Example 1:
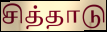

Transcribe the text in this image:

சித்தாடு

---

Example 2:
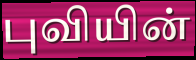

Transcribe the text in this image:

புவியின்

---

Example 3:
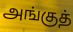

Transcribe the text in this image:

அங்குத்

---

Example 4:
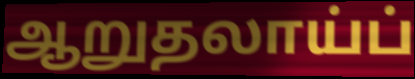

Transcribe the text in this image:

ஆறுதலாய்ப்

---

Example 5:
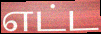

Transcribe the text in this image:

எட்ட